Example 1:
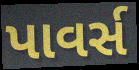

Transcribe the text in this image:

પાવર્સ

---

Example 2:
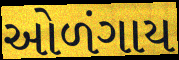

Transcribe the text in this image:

ઓળંગાય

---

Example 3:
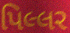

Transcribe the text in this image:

પિલ્લર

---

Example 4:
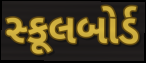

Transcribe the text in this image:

સ્કૂલબોર્ડ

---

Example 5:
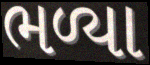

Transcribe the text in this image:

ભળ્યા